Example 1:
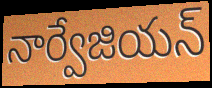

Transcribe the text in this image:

నార్వేజియన్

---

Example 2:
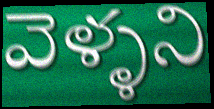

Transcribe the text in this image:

వెళ్ళని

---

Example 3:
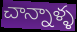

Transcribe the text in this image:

చాన్నాళ్ళ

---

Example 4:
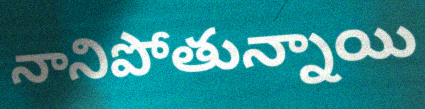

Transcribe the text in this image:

నానిపోతున్నాయి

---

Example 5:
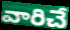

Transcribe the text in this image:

వారిచే